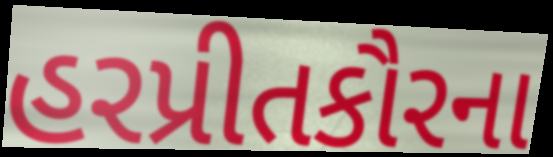
હરપ્રીતકૌરના